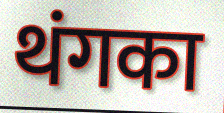
थंगका